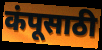
कंपूसाठी